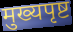
मुख्यपृष्ट